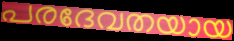
പരദേവതയായ